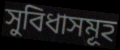
সুবিধাসমূহ